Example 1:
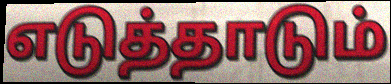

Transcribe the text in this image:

எடுத்தாடும்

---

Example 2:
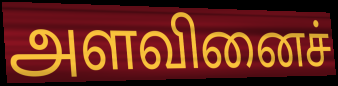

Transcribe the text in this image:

அளவினைச்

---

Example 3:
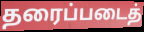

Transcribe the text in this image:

தரைப்படைத்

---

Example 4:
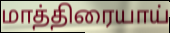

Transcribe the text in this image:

மாத்திரையாய்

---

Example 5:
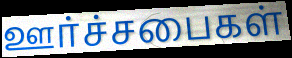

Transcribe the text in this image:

ஊர்ச்சபைகள்